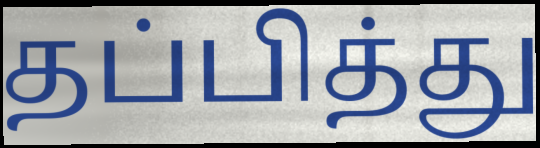
தப்பித்து